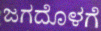
ಜಗದೊಳಗೆ